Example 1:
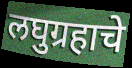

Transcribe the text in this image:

लघुग्रहाचे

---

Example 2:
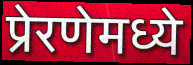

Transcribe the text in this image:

प्रेरणेमध्ये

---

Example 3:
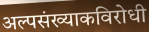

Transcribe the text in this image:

अल्पसंख्याकविरोधी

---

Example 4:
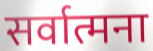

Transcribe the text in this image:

सर्वात्मना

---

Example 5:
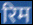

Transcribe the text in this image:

रिम